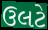
ઉલટે